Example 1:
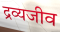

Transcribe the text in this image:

द्रव्यजीव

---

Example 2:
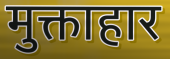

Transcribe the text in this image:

मुक्ताहार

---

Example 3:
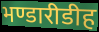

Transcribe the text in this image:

भण्डारीडीह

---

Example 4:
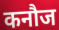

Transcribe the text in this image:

कनौज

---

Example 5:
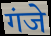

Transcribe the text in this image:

गंजे